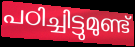
പഠിച്ചിട്ടുമുണ്ട്